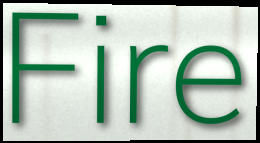
Fire